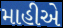
માહીએ